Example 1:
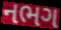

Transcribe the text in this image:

નભગ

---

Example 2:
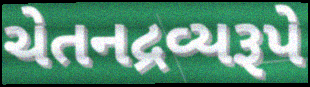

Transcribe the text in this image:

ચેતનદ્રવ્યરૂપે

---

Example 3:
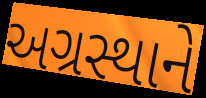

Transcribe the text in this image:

અગ્રસ્થાને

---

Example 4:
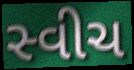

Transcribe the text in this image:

સ્વીચ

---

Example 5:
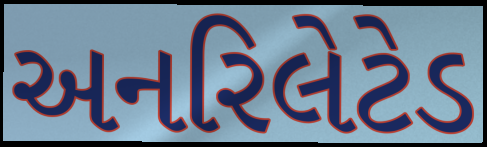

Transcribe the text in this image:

અનરિલેટેડ